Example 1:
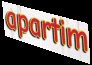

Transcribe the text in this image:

apartim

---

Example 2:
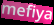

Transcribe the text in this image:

mefiya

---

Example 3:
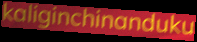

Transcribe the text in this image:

kaliginchinanduku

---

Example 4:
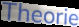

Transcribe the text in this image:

Theorie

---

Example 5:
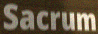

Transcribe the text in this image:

Sacrum